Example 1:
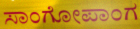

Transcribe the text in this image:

ಸಾಂಗೋಪಾಂಗ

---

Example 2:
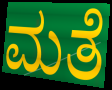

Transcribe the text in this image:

ಮತೆ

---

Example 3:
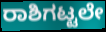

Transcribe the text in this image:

ರಾಶಿಗಟ್ಟಲೇ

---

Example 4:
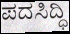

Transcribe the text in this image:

ಪದಸಿದ್ಧಿ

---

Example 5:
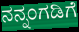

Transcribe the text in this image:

ನನ್ನಂಗಡಿಗೆ